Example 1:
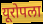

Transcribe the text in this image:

यूरोपला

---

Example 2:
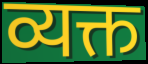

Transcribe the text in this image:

व्यक्त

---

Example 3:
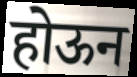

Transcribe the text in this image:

होऊन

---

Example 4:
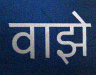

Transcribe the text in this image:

वाझे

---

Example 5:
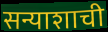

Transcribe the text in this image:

सन्याशाची